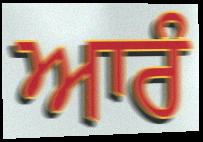
ਆਰੰ